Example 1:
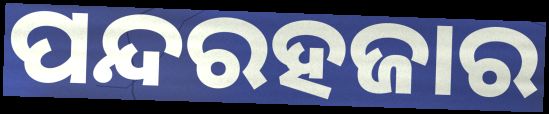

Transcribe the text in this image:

ପନ୍ଦରହଜାର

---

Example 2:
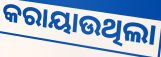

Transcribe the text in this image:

କରାୟାଉଥିଲା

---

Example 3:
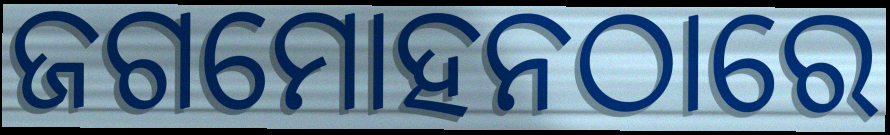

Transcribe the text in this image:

ଜଗମୋହନଠାରେ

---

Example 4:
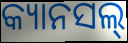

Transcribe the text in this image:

କ୍ୟାନସଲ୍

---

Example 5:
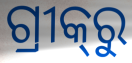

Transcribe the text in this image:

ଗ୍ରୀକ୍‌ରୁ